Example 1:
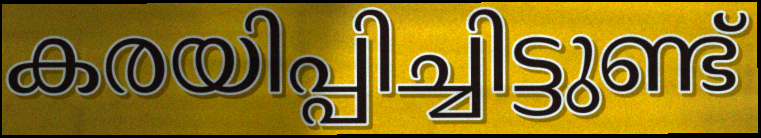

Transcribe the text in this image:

കരയിപ്പിച്ചിട്ടുണ്ട്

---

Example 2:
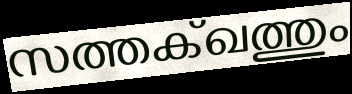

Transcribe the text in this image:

സത്തക്ഖത്തും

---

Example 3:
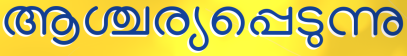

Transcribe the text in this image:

ആശ്ചര്യപ്പെടുന്നു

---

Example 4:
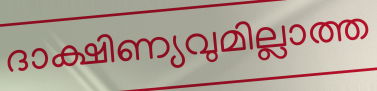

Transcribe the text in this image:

ദാക്ഷിണ്യവുമില്ലാത്ത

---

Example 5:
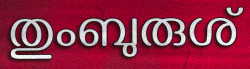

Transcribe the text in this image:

തുംബുരുശ്